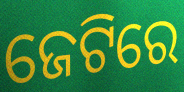
ଜେଟିରେ